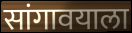
सांगावयाला